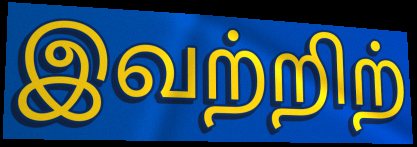
இவற்றிற்